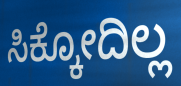
ಸಿಕ್ಕೋದಿಲ್ಲ